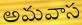
అమవాస